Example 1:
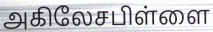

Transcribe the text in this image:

அகிலேசபிள்ளை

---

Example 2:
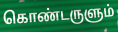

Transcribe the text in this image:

கொண்டருளும்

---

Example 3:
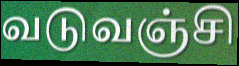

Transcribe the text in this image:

வடுவஞ்சி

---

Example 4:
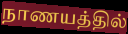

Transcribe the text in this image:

நாணயத்தில்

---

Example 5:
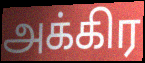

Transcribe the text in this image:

அக்கிர